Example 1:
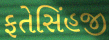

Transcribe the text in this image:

ફતેસિંહજી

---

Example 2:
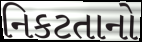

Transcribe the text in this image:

નિકટતાનો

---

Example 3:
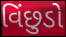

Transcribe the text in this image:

વિંછુડો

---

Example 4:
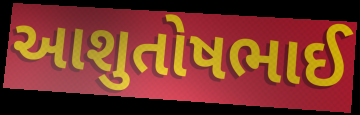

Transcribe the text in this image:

આશુતોષભાઈ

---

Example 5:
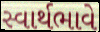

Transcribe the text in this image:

સ્વાર્થભાવે